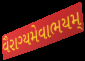
વૈરાગ્યમેવાભયમ્